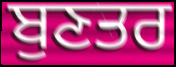
ਬੁਣਤਰ